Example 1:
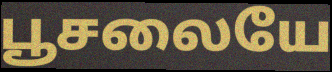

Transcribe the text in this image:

பூசலையே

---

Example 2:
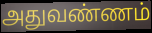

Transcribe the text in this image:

அதுவண்ணம்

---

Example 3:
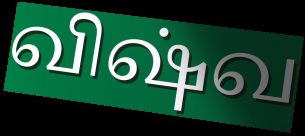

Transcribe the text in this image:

விஷ்வ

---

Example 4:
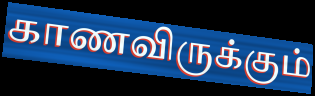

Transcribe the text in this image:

காணவிருக்கும்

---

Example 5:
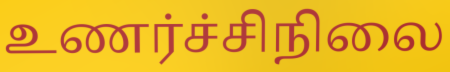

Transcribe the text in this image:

உணர்ச்சிநிலை